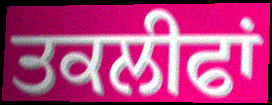
ਤਕਲੀਫਾਂ